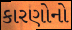
કારણોનો